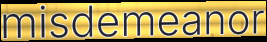
misdemeanor